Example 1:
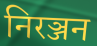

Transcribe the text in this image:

निरञ्जन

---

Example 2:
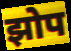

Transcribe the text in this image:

झोप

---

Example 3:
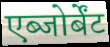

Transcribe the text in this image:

एब्जोर्बेंट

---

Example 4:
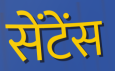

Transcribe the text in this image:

सेंटेंस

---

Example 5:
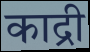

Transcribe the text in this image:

काद्री